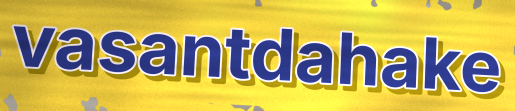
vasantdahake